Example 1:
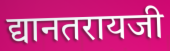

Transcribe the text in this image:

द्यानतरायजी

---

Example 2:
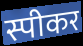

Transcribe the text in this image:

स्‍पीकर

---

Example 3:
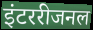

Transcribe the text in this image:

इंटररीजनल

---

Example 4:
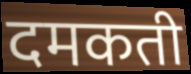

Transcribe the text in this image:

दमकती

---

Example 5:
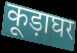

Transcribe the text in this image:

कूड़ाघर